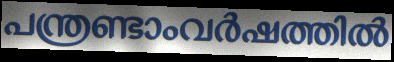
പന്ത്രണ്ടാംവർഷത്തിൽ